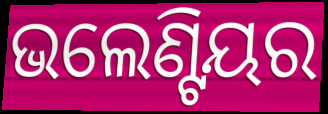
ଭଲେଣ୍ଟିୟର